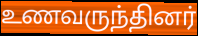
உணவருந்தினர்